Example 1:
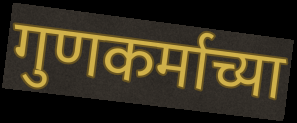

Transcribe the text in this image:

गुणकर्माच्या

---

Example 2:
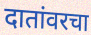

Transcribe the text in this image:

दातांवरचा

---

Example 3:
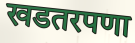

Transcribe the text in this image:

खडतरपणा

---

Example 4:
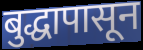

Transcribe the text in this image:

बुद्धापासून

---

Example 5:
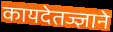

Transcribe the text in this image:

कायदेतज्ज्ञाने